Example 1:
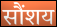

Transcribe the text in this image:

सौंशय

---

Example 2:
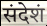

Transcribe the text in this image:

संदेशं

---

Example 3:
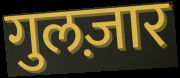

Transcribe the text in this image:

गुलज़ार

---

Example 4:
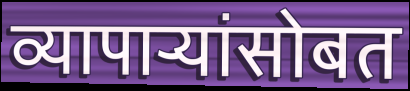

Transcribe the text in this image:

व्यापाऱ्यांसोबत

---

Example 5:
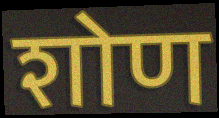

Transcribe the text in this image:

शोण